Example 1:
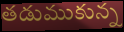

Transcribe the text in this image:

తడుముకున్న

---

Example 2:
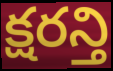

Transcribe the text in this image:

క్షరన్తి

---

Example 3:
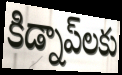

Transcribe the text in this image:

కిడ్నాప్‌లకు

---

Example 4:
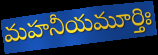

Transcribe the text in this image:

మహనీయమూర్తిః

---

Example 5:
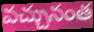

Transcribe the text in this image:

వచ్చునంత